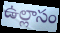
ఉల్లాసం